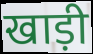
खाड़ी